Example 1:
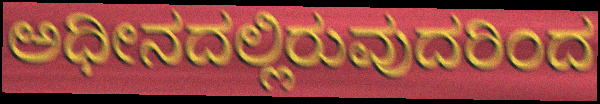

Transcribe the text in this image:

ಅಧೀನದಲ್ಲಿರುವುದರಿಂದ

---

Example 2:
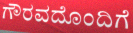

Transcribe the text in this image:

ಗೌರವದೊಂದಿಗೆ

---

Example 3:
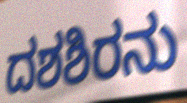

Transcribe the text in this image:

ದಶಶಿರನು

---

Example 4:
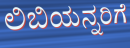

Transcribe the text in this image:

ಲಿಬಿಯನ್ನರಿಗೆ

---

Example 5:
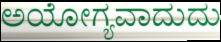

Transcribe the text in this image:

ಅಯೋಗ್ಯವಾದುದು